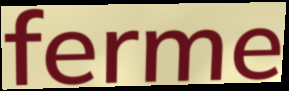
ferme